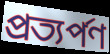
প্ৰত্যৰ্পণ